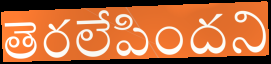
తెరలేపిందని